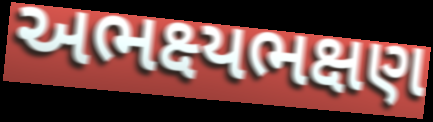
અભક્ષ્યભક્ષણ